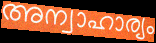
അന്വാഹാര്യം